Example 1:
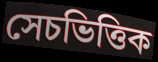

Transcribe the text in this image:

সেচভিত্তিক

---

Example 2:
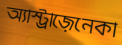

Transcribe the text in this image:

অ্যাস্ট্রাজ়েনেকা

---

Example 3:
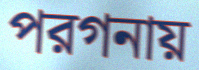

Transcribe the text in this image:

পরগনায়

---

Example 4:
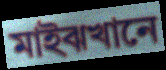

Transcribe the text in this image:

মাইঝখানে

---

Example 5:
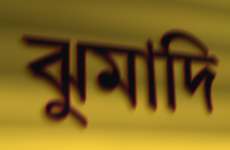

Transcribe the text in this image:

ঝুমাদি